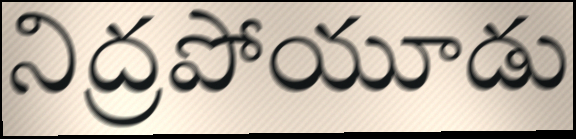
నిద్రపోయూడు